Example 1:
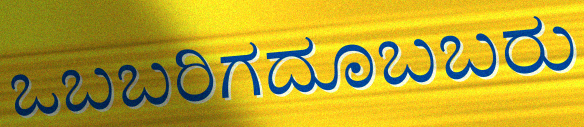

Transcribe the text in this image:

ಒಬಬರಿಗದೂಬಬರು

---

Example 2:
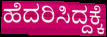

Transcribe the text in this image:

ಹೆದರಿಸಿದ್ದಕ್ಕೆ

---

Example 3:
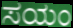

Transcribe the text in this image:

ಸಯಂ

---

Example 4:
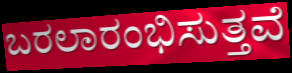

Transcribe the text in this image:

ಬರಲಾರಂಭಿಸುತ್ತವೆ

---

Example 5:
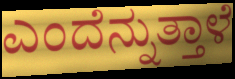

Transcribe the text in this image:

ಎಂದೆನ್ನುತ್ತಾಳೆ